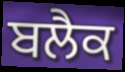
ਬਲੈਕ